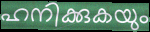
ഹനിക്കുകയും